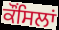
ਕੌਂਸਿਲਾਂ